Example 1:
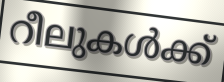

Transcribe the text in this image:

റീലുകൾക്ക്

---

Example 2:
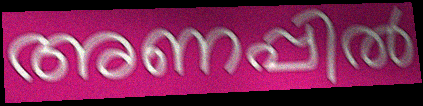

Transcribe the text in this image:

അണപ്പിൽ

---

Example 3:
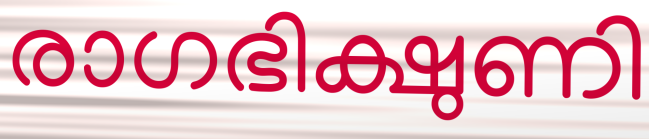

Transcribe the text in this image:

രാഗഭിക്ഷുണി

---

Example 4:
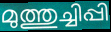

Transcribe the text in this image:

മുത്തുച്ചിപ്പി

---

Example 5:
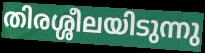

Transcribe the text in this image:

തിരശ്ശീലയിടുന്നു